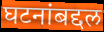
घटनांबद्दल